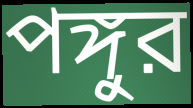
পঙ্গুর